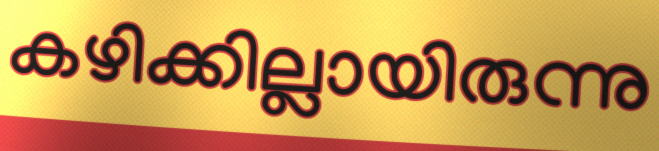
കഴിക്കില്ലായിരുന്നു